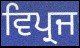
ਵਿਪ੍ਰਜ